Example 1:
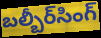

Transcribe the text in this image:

బల్బీర్‌సింగ్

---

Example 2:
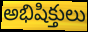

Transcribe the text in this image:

అభిషిక్తులు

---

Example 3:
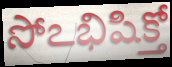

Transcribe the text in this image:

సోఽభిషిక్తో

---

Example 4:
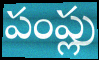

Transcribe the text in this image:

పంప్లు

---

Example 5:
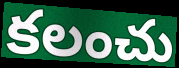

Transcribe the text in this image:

కలంచు